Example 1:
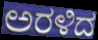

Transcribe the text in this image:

ಅರಳಿದ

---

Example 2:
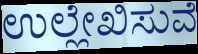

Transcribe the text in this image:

ಉಲ್ಲೇಖಿಸುವೆ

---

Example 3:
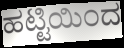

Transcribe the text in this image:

ಹಟ್ಟಿಯಿಂದ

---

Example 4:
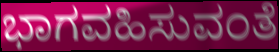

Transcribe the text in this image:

ಭಾಗವಹಿಸುವಂತೆ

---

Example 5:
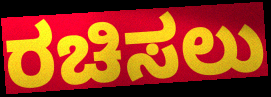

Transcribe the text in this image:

ರಚಿಸಲು